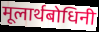
मूलार्थबोधिनी